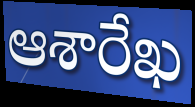
ఆశారేఖ